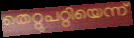
തെറ്റുപറ്റിയെന്ന്